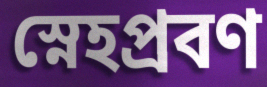
স্নেহপ্রবণ